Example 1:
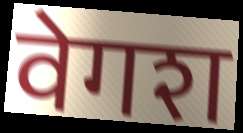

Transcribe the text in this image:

वेगश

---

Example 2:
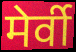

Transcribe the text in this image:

मेर्वी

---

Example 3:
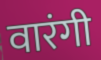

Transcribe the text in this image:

वारंगी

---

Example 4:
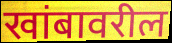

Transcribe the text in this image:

खांबावरील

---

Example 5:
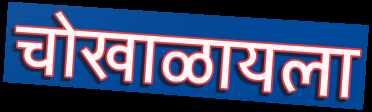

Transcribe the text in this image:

चोखाळायला